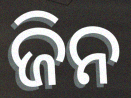
ଜିନ